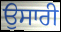
ਉਸਾਰੀ